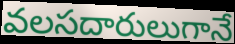
వలసదారులుగానే